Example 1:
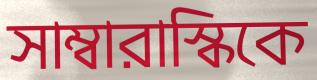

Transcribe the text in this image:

সাম্বারাস্কিকে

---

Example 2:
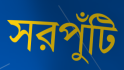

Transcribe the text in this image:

সরপুঁটি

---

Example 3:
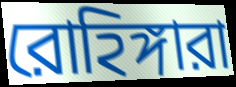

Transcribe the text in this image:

রোহিঙ্গারা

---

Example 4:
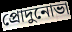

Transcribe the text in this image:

প্রোদুনোভা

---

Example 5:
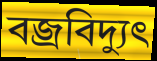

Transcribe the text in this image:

বজ্রবিদ্যুৎ